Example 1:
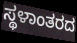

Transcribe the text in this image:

ಸ್ಥಳಾಂತರದ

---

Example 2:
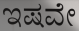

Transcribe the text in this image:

ಇಷವೇ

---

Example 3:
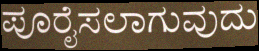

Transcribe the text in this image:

ಪೂರೈಸಲಾಗುವುದು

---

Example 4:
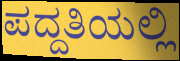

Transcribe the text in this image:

ಪದ್ದತಿಯಲ್ಲಿ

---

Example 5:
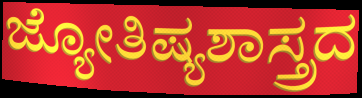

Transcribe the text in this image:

ಜ್ಯೋತಿಷ್ಯಶಾಸ್ತ್ರದ